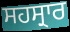
ਸਹਸ੍ਰਾਰ